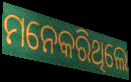
ମନେକରିଥିଲେ